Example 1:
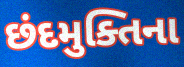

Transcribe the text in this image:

છંદમુક્તિના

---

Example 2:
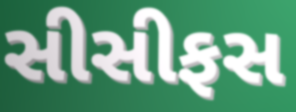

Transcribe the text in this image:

સીસીફસ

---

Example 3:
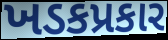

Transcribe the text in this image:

ખડકપ્રકાર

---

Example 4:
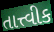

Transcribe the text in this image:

તાત્ત્વીક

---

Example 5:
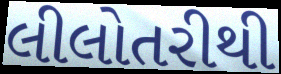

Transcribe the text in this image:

લીલોતરીથી